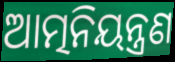
ଆତ୍ମନିୟନ୍ତ୍ରଣ